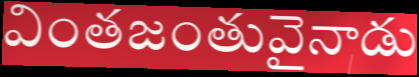
వింతజంతువైనాడు